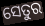
ସେତୁର